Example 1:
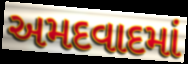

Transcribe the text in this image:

અમદવાદમાં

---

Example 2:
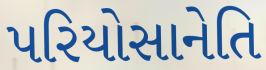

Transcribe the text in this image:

પરિયોસાનેતિ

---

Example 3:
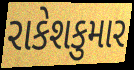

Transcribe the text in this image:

રાકેશકુમાર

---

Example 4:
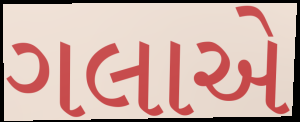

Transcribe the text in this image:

ગલાએ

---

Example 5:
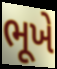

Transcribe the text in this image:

ભૂખે